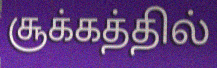
சூக்கத்தில்